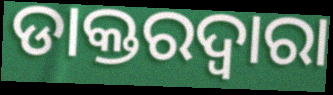
ଡାକ୍ତରଦ୍ୱାରା